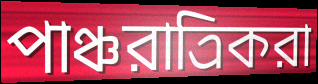
পাঞ্চরাত্রিকরা